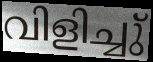
വിളിച്ചു്